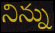
నిన్ను